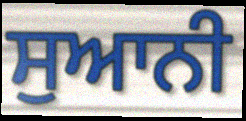
ਸੁਆਨੀ